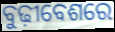
ବୁଢ଼ୀବେଶରେ